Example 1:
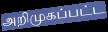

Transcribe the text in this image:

அறிமுகப்பட்ட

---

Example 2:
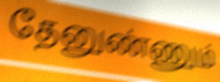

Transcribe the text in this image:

தேனுண்ணும்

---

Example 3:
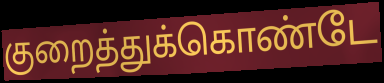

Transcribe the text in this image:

குறைத்துக்கொண்டே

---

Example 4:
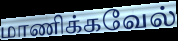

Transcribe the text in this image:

மாணிக்கவேல்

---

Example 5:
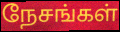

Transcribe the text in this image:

நேசங்கள்